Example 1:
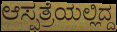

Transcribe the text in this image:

ಆಸ್ಪತ್ರೆಯಲ್ಲಿದ್ದ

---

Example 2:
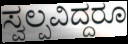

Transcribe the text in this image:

ಸ್ವಲ್ಪವಿದ್ದರೂ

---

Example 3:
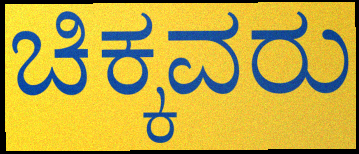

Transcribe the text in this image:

ಚಿಕ್ಕವರು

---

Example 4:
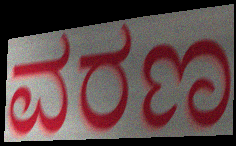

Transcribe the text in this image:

ವರಣ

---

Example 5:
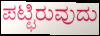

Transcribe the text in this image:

ಪಟ್ಟಿರುವುದು